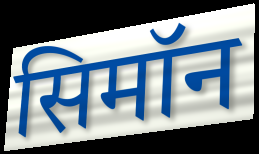
सिमॉन